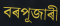
বৰপূজাৰী